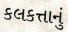
કલકત્તાનું